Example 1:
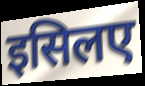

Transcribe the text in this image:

इसिलए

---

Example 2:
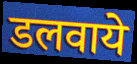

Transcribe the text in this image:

डलवाये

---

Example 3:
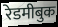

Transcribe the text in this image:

रेडमीबुक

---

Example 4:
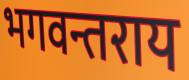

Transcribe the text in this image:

भगवन्तराय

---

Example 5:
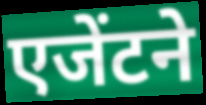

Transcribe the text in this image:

एजेंटने